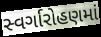
સ્વર્ગારોહણમાં